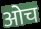
ओच